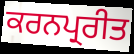
ਕਰਨਪ੍ਰਰੀਤ